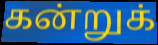
கன்றுக்